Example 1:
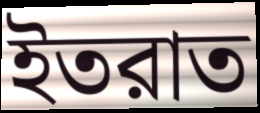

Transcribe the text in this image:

ইতরাত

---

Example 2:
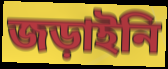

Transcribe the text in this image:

জড়াইনি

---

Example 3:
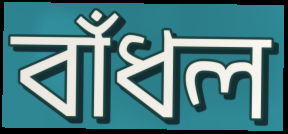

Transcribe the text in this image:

বাঁধল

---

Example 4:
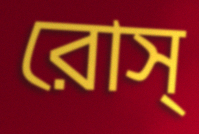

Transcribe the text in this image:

রোস্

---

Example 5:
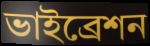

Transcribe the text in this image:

ভাইব্রেশন